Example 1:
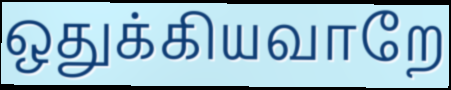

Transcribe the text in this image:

ஒதுக்கியவாறே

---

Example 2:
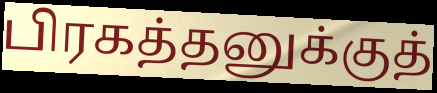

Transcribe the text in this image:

பிரகத்தனுக்குத்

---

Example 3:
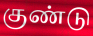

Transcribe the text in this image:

குண்டு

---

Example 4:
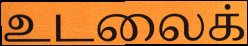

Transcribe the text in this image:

உடலைக்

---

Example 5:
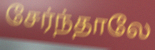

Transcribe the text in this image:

சேர்ந்தாலே